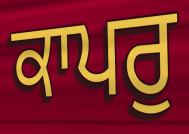
ਕਾਪਰੁ